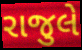
રાજુલે